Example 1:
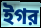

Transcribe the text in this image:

ইগর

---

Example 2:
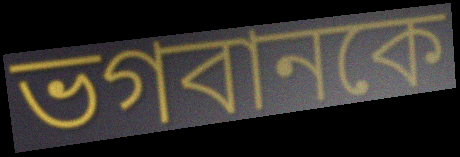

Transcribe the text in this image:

ভগবানকে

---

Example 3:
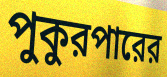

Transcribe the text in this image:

পুকুরপারের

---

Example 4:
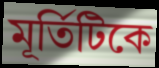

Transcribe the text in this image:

মূর্তিটিকে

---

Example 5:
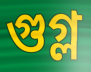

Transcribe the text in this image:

গুগ্ল